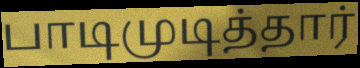
பாடிமுடித்தார்